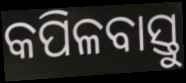
କପିଳବାସ୍ତୁ